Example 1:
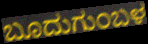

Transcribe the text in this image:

ಬೂದುಗುಂಬಳ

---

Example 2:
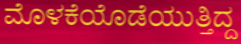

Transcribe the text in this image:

ಮೊಳಕೆಯೊಡೆಯುತ್ತಿದ್ದ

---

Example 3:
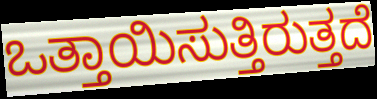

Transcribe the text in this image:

ಒತ್ತಾಯಿಸುತ್ತಿರುತ್ತದೆ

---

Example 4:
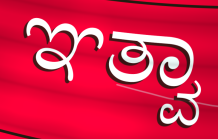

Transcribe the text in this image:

ಞತ್ವಾ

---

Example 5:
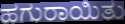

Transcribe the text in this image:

ಹಗುರಾಯಿತು